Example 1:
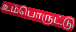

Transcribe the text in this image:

உம்பொருட்டு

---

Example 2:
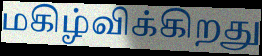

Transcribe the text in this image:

மகிழ்விக்கிறது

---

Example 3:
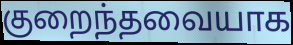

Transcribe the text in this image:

குறைந்தவையாக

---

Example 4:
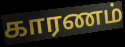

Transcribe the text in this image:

காரணம்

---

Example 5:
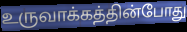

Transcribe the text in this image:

உருவாக்கத்தின்போது